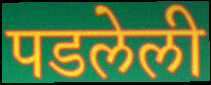
पडलेली